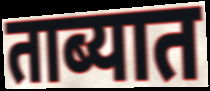
ताब्यात